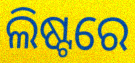
ଲିଷ୍ଟରେ